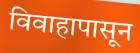
विवाहापासून